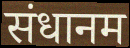
संधानम